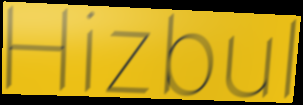
Hizbul